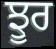
ਝੂਰ